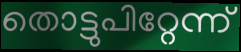
തൊട്ടുപിറ്റേന്ന്